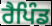
ਰੈਪਿੰਡ